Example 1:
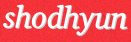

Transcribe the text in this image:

shodhyun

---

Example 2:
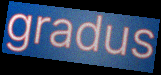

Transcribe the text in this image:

gradus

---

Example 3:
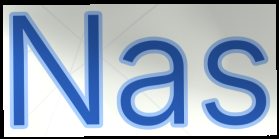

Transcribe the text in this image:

Nas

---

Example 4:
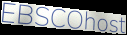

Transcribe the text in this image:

EBSCOhost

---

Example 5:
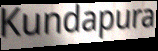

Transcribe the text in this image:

Kundapura